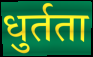
धुर्तता